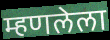
म्हणलेला